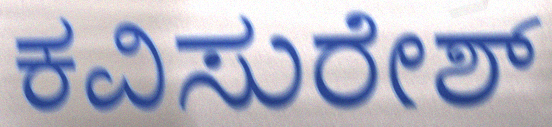
ಕವಿಸುರೇಶ್